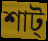
শাট্